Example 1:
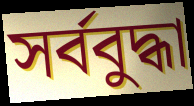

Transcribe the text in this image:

সৰ্ববুদ্ধা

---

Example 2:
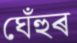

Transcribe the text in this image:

ঘেঁহুৰ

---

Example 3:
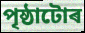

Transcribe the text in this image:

পৃষ্ঠাটোৰ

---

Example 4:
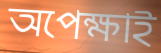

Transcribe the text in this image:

অপেক্ষাই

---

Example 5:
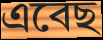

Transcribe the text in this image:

এবেছ